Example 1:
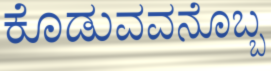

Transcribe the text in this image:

ಕೊಡುವವನೊಬ್ಬ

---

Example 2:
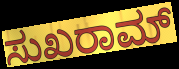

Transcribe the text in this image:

ಸುಖರಾಮ್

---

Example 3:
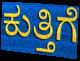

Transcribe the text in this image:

ಕುತ್ತಿಗೆ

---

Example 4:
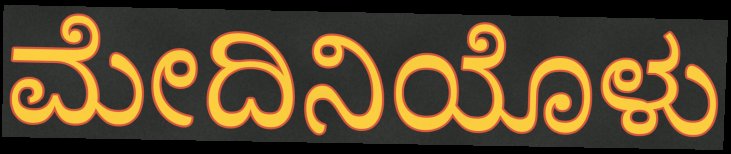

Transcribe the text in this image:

ಮೇದಿನಿಯೊಳು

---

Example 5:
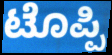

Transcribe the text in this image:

ಟೊಪ್ಪಿ